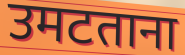
उमटताना